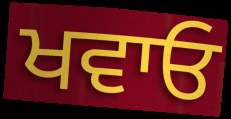
ਖਵਾਓ